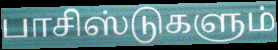
பாசிஸ்டுகளும்